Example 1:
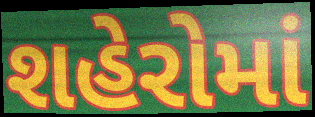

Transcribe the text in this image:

શહેરોમાં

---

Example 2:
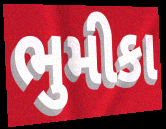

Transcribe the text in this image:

ભુમીકા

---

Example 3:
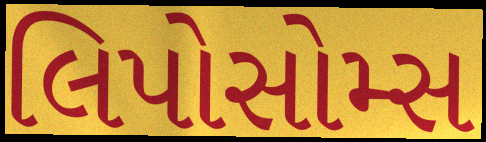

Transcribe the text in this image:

લિપોસોમ્સ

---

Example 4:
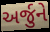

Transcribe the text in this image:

અર્જુને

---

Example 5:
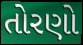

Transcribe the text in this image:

તોરણો